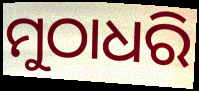
ମୁଠାଧରି